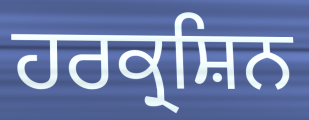
ਹਰਕ੍ਰਸ਼ਿਨ